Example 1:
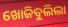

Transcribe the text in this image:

ଖୋଜିବୁଲିଲା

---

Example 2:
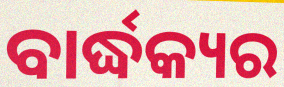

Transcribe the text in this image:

ବାର୍ଦ୍ଧକ୍ୟର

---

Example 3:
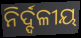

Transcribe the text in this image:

ନିର୍ଦ୍ଦଳୀୟ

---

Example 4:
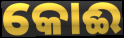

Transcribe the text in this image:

କୋଈ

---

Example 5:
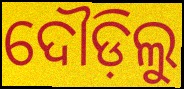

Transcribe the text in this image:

ଦୌଡ଼ିଲୁ